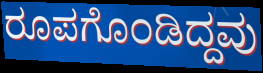
ರೂಪಗೊಂಡಿದ್ದವು